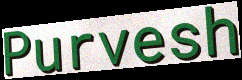
Purvesh